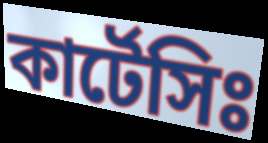
কার্টেসিঃ